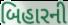
બિહારની